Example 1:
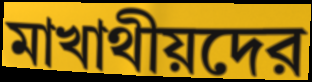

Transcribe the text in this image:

মাখাথীয়দের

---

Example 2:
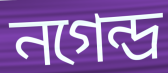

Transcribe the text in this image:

নগেন্দ্র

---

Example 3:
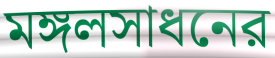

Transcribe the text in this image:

মঙ্গলসাধনের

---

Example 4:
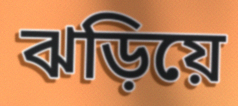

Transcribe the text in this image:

ঝড়িয়ে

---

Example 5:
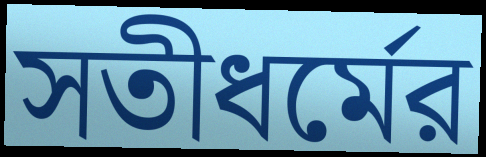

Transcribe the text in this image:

সতীধর্মের